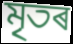
মৃতৰ